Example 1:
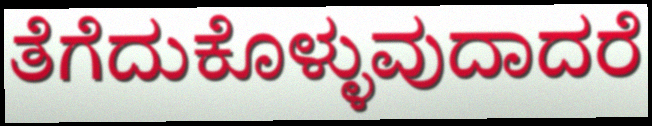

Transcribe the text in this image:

ತೆಗೆದುಕೊಳ್ಳುವುದಾದರೆ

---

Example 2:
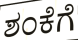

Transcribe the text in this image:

ಶಂಕೆಗೆ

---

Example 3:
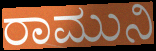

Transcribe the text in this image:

ರಾಮುನಿ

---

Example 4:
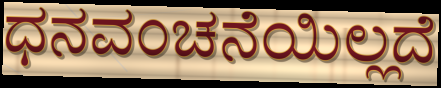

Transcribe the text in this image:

ಧನವಂಚನೆಯಿಲ್ಲದೆ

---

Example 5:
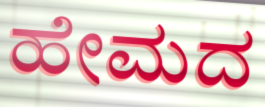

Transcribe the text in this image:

ಹೇಮದ